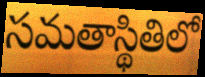
సమతాస్థితిలో